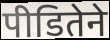
पीडितेने